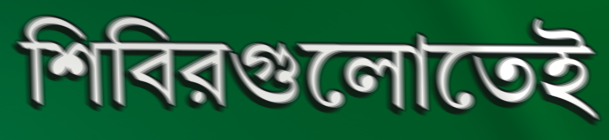
শিবিরগুলোতেই